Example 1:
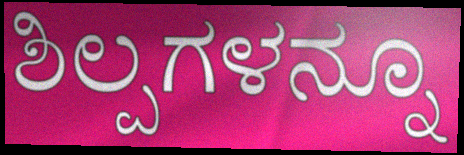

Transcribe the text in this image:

ಶಿಲ್ಪಗಳನ್ನೂ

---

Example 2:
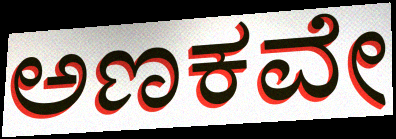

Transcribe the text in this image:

ಅಣಕವೇ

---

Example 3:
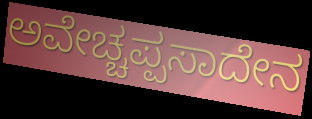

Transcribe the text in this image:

ಅವೇಚ್ಚಪ್ಪಸಾದೇನ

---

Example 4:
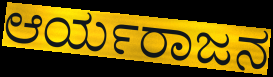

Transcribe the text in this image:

ಆರ್ಯರಾಜನ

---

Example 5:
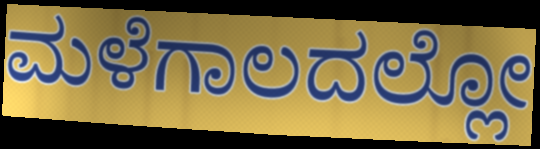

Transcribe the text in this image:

ಮಳೆಗಾಲದಲ್ಲೋ